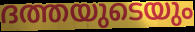
ദത്തയുടെയും